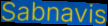
Sabnavis